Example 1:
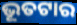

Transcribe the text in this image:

ଭୂତଟାର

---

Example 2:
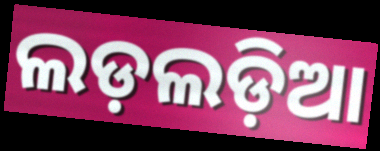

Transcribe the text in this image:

ଲଡ଼ଲଡ଼ିଆ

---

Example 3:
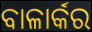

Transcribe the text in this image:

ବାଳାର୍କର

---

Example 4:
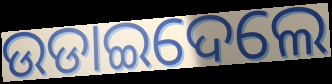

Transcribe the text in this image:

ଉଡାଇଦେଲେ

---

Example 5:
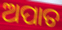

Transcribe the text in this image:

ଅପାତ